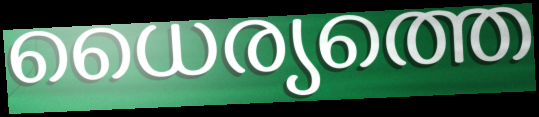
ധൈര്യത്തെ